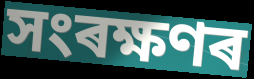
সংৰক্ষণৰ